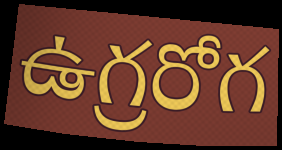
ఉగ్రరోగ